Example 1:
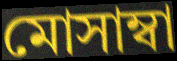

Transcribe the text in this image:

মোসাম্বা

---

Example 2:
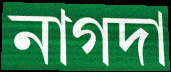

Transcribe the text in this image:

নাগদা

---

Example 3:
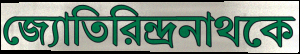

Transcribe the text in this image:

জ্যোতিরিন্দ্রনাথকে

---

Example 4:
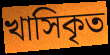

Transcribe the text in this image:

খাসিকৃত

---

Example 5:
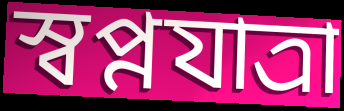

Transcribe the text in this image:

স্বপ্নযাত্রা